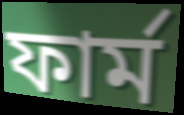
ফার্ম